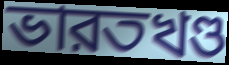
ভারতখণ্ড